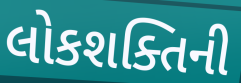
લોકશક્તિની